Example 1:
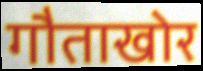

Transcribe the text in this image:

गौताखोर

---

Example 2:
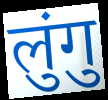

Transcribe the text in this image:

लुंगु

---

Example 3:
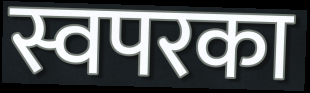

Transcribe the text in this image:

स्वपरका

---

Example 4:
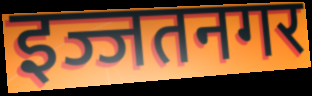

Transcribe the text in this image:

इज्जतनगर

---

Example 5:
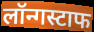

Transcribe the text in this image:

लॉन्गस्टाफ